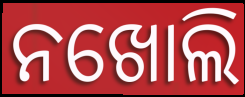
ନଖୋଲି